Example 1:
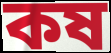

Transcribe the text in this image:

কষ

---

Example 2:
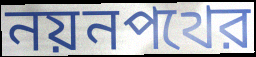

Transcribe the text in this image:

নয়নপথের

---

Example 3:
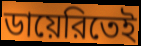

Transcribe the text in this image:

ডায়েরিতেই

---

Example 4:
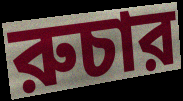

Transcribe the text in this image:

রুচার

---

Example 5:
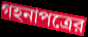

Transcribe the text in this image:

গহনাপত্রের